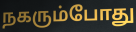
நகரும்போது